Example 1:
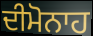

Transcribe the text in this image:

ਦੀਮੋਨਾਹ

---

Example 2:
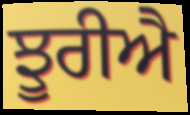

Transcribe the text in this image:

ਝੂਰੀਐ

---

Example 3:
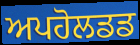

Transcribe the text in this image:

ਅਪਹੋਲਡਡ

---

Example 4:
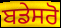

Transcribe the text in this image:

ਬਡੇਸਰੋ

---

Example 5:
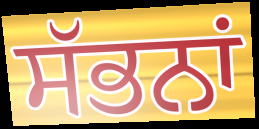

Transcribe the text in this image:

ਸੱਭਨਾਂ